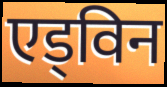
एड्विन